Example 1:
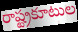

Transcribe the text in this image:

రాష్ట్రకూటుల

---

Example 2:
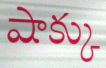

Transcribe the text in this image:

షాక్కు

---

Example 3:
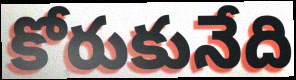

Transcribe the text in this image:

కోరుకునేది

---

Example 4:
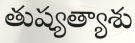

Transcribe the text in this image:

తుష్యత్యాశు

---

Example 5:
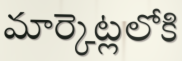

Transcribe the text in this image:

మార్కెట్లలోకి